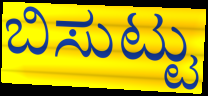
ಬಿಸುಟ್ಟು